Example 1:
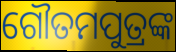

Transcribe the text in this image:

ଗୌତମପୁତ୍ରଙ୍କ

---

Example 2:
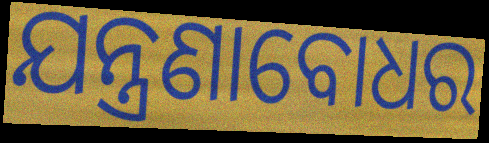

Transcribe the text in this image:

ଯନ୍ତ୍ରଣାବୋଧର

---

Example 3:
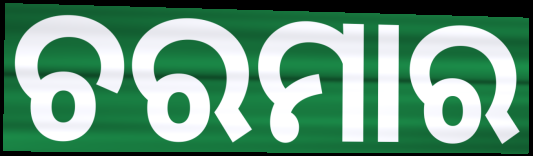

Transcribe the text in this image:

ଚରମାର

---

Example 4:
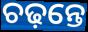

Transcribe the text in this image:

ଚଢ଼ନ୍ତେ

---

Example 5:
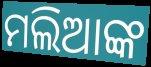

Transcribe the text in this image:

ମଲିଆଙ୍କ